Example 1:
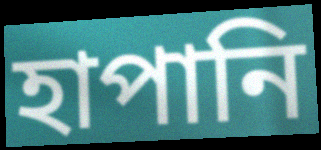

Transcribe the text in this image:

হাপানি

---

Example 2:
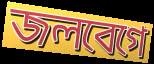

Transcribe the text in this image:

জলবেগে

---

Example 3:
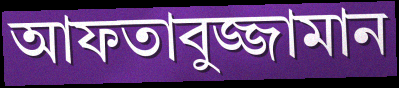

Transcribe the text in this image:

আফতাবুজ্জামান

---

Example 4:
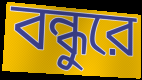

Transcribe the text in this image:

বন্ধুরে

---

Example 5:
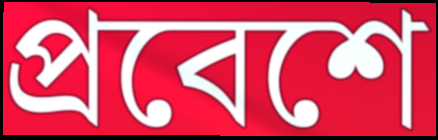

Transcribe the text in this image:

প্রবেশে